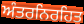
ਅੰਤਰਨਿਰਹਿਤ